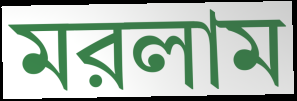
মরলাম